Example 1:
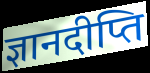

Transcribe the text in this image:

ज्ञानदीप्ति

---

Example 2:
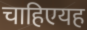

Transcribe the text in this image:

चाहिएयह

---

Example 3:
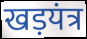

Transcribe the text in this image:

खड़यंत्र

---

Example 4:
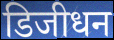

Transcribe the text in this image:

डिजीधन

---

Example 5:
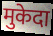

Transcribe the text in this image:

मुकेदा